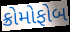
ક્રોમોફોબ